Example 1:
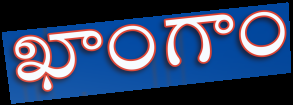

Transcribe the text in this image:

ఖాంగాం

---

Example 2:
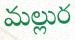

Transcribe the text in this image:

మల్లుర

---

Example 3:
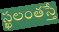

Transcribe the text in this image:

స్ఖలంతస్తే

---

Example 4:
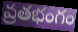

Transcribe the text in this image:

వ్రతభంగం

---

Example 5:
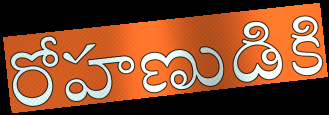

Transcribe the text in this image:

రోహణుడికి